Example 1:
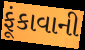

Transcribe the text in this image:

ફૂંકાવાની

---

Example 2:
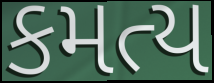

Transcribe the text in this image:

કમત્ય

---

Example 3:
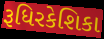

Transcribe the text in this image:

રૂધિરકેશિકા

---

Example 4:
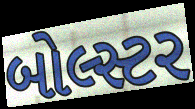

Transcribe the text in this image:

બોલ્સ્ટર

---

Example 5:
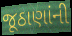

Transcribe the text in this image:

જૂઠાણાંની